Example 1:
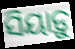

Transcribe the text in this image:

ସିୟାଡ଼ୁ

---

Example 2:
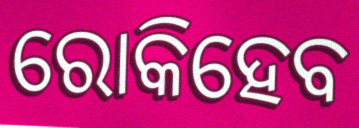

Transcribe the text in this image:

ରୋକିହେବ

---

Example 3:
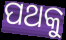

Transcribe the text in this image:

ପଥକୁ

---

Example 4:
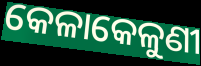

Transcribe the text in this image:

କେଳାକେଳୁଣୀ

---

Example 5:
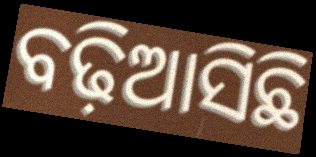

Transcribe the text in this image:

ବଢ଼ିଆସିଛି